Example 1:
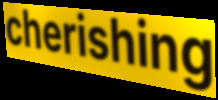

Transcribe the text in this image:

cherishing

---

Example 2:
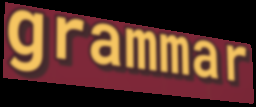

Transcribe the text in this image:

grammar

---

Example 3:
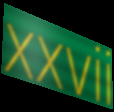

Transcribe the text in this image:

xxvii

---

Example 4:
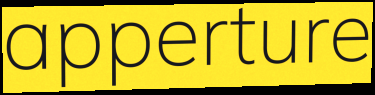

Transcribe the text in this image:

apperture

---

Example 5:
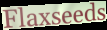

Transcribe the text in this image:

Flaxseeds